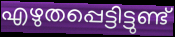
എഴുതപ്പെട്ടിട്ടുണ്ട്